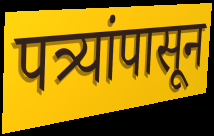
पत्र्यांपासून